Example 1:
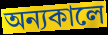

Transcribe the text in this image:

অন্যকালে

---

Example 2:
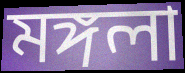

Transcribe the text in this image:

মঙ্গলা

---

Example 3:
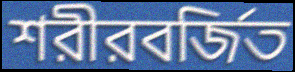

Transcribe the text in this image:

শরীরবর্জিত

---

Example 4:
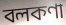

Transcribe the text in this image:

বলকণা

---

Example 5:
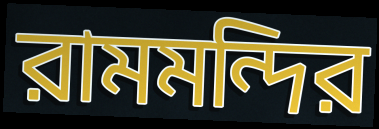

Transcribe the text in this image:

রামমন্দির